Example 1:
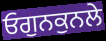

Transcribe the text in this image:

ਓਗੁਨਕੁਨਲੇ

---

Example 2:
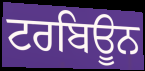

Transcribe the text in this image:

ਟਰਬਿਊਨ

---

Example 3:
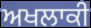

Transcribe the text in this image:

ਅਖਲਾਕੀ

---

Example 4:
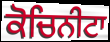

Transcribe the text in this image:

ਕੋਚਿਨੀਟਾ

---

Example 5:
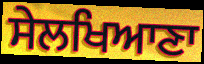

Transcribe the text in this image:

ਸੇਲਖਿਆਣਾ